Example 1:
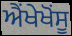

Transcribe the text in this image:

ਐਂਖੇਖੋਂਸੂ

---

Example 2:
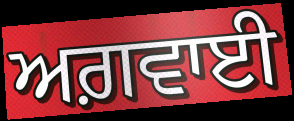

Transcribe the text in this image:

ਅਗ਼ਵਾਈ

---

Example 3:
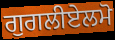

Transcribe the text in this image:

ਗੁਗਲੀਏਲਮੋ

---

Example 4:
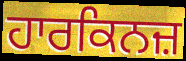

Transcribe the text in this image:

ਹਾਰਕਿਨਜ਼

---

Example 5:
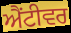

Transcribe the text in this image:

ਐਂਟੀਵਰ